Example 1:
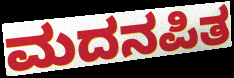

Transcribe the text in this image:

ಮದನಪಿತ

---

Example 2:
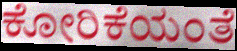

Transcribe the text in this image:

ಕೋರಿಕೆಯಂತೆ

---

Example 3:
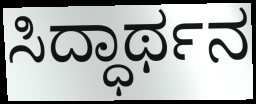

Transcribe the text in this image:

ಸಿದ್ಧಾರ್ಥನ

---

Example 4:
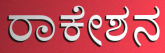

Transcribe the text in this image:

ರಾಕೇಶನ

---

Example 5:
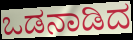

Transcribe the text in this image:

ಒಡನಾಡಿದ